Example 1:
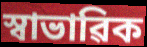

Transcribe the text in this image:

স্বাভাৱিক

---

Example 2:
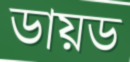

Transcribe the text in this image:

ডায়ড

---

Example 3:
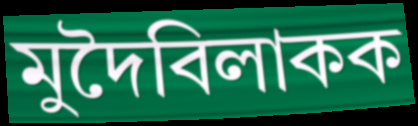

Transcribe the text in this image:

মুদৈবিলাকক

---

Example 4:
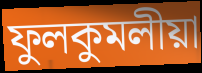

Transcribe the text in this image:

ফুলকুমলীয়া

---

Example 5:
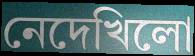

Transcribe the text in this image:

নেদেখিলো